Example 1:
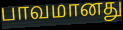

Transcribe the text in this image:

பாவமானது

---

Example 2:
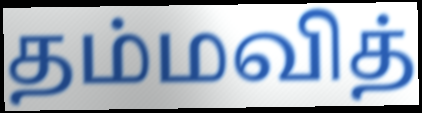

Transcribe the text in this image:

தம்மவித்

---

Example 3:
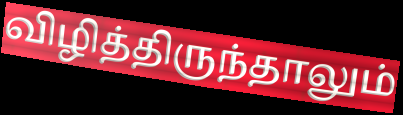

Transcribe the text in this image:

விழித்திருந்தாலும்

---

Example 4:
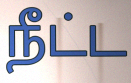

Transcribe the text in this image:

நீட்ட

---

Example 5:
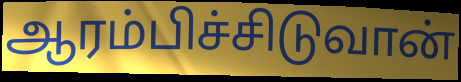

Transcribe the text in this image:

ஆரம்பிச்சிடுவான்